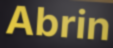
Abrin